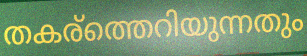
തകര്ത്തെറിയുന്നതും